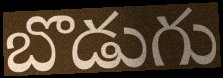
బొడుగు